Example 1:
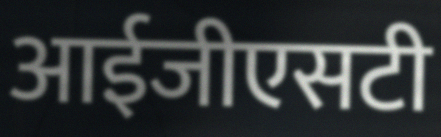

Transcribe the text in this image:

आईजीएसटी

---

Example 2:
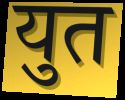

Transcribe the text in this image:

युत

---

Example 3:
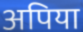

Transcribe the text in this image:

अपिया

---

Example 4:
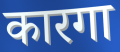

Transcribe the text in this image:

कारगा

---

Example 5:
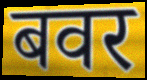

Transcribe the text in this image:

बवर